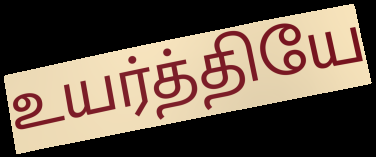
உயர்த்தியே